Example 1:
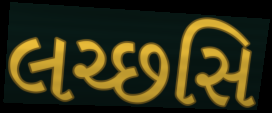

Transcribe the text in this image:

લચ્છસિ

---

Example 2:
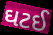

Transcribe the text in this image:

ઘટઈ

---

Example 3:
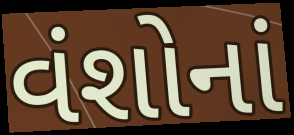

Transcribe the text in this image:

વંશોનાં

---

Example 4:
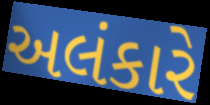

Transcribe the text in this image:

અલંકારે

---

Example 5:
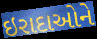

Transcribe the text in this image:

ઇરાદાઓને